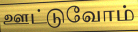
ஊட்டுவோம்